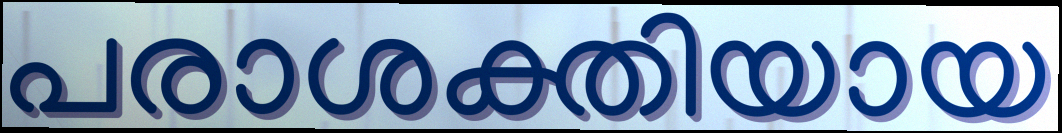
പരാശക്തിയായ